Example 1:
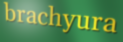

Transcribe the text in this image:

brachyura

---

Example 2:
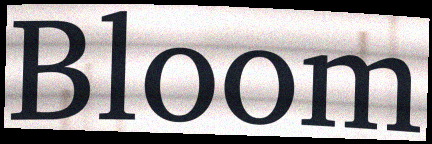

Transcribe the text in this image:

Bloom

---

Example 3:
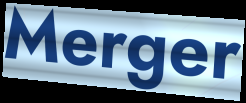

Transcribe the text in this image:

Merger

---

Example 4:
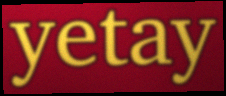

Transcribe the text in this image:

yetay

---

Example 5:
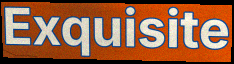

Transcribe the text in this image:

Exquisite